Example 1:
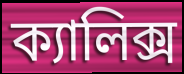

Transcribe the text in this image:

ক্যালিক্স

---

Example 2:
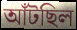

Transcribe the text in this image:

আঁটছিল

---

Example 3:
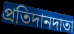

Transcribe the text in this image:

প্রতিদানদাতা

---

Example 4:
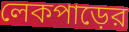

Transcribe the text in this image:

লেকপাড়ের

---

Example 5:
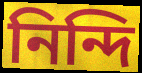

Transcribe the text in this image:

নিন্দি